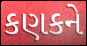
કણકને